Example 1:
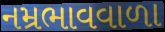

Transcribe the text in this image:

નમ્રભાવવાળા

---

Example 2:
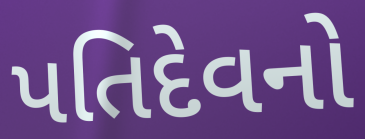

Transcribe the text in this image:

પતિદેવનો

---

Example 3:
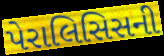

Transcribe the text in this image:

પેરાલિસિસની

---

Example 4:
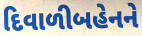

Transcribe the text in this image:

દિવાળીબહેનને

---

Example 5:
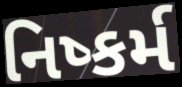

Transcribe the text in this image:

નિષ્કર્મ